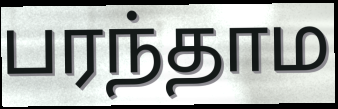
பரந்தாம